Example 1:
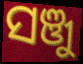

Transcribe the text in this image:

ସଞ୍ଜୁ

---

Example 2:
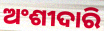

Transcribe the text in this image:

ଅଂଶୀଦାରି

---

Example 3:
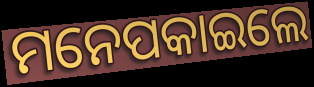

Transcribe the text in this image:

ମନେପକାଇଲେ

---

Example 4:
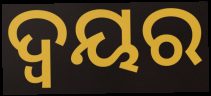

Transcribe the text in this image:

ଦ୍ଵୟର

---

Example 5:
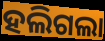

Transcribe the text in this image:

ହଲିଗଲା